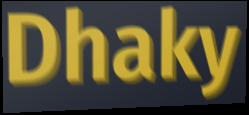
Dhaky